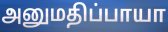
அனுமதிப்பாயா